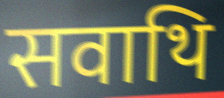
सवाथि